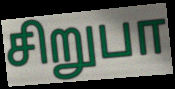
சிறுபா